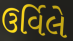
ઉર્વિલે